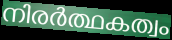
നിരർത്ഥകത്വം